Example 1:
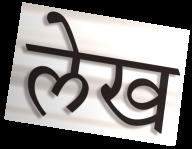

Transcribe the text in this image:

लेख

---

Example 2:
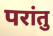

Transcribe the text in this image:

परांतु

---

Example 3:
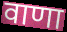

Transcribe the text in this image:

वाणा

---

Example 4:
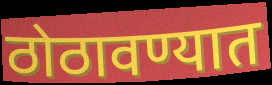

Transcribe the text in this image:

ठोठावण्यात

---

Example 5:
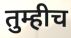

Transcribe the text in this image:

तुम्हीच